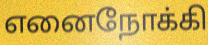
எனைநோக்கி